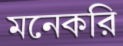
মনেকরি